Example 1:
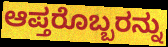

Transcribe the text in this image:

ಆಪ್ತರೊಬ್ಬರನ್ನು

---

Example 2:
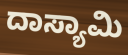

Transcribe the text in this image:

ದಾಸ್ಯಾಮಿ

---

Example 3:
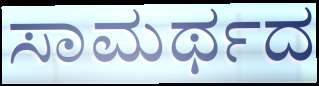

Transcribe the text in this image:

ಸಾಮರ್ಥದ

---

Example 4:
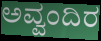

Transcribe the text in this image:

ಅವ್ವಂದಿರ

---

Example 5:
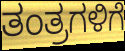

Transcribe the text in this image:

ತಂತ್ರಗಳಿಗೆ